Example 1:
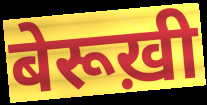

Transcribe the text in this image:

बेरूख़ी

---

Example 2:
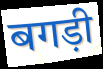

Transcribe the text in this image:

बगड़ी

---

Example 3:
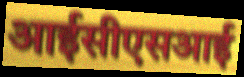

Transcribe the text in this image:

आईसीएसआई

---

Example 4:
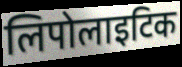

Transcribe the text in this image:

लिपोलाइटिक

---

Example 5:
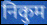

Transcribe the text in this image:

निकुम